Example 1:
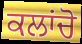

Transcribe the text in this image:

ਕਲਾਂਚੋ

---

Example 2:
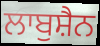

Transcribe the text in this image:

ਲਾਬੁਸ਼ੈਨ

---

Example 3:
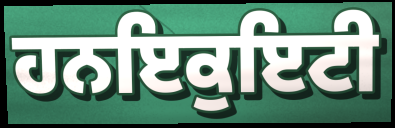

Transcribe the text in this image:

ਹਨਇਕੁਇਟੀ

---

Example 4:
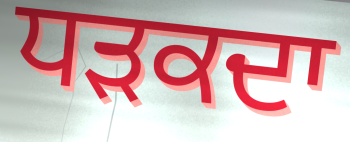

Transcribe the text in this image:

ਧੜਕਦਾ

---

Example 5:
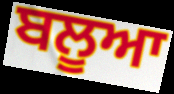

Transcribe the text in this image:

ਬਲੂਆ